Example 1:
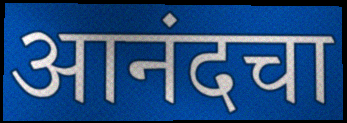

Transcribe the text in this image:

आनंदचा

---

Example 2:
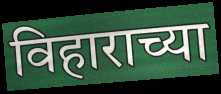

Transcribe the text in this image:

विहाराच्या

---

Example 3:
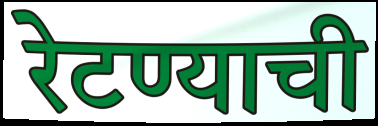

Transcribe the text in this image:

रेटण्याची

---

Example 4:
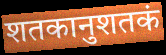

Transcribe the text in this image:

शतकानुशतकं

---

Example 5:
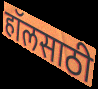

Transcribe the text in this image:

हॉलसाठी